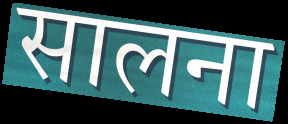
सालना